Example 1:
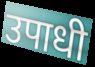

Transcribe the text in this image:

उपाधी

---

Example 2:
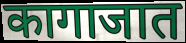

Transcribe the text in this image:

कागाजात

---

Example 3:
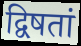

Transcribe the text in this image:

द्विषतां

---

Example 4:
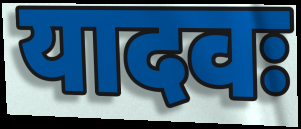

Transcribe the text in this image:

यादवः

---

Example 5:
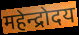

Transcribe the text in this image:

महेन्द्रोदय